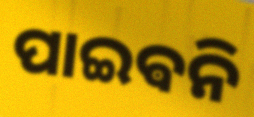
ପାଇଵନି